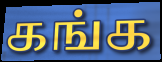
கங்க